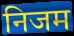
निजम